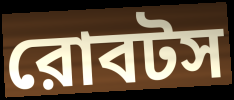
রোবটস